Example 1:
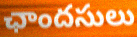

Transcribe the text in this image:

ఛాందసులు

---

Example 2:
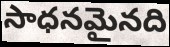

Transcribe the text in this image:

సాధనమైనది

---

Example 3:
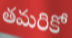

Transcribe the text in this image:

తమరికో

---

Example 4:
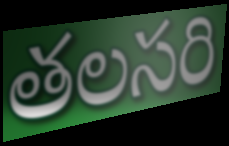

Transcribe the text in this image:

తలసరి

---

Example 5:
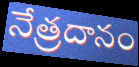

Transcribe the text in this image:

నేత్రదానం